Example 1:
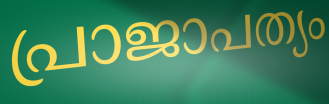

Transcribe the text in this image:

പ്രാജാപത്യം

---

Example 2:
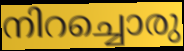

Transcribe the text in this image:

നിറച്ചൊരു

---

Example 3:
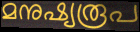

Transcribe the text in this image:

മനുഷ്യരൂപ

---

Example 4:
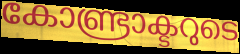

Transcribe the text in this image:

കോണ്ട്രാക്ടറുടെ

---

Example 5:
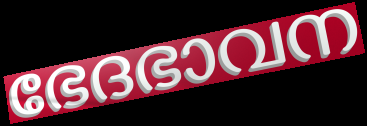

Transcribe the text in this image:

ഭേദഭാവന